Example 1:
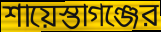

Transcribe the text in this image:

শায়েস্তাগঞ্জের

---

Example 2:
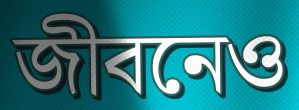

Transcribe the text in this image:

জীবনেও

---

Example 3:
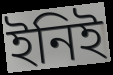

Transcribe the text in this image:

ইনিই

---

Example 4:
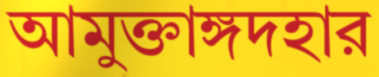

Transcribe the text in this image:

আমুক্তাঙ্গদহার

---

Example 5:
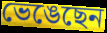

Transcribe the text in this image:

ভেঙেছেন